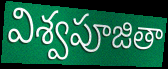
విశ్వపూజితా